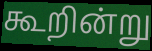
கூறின்று